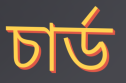
চার্ড